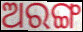
ଅରଙ୍ଗ